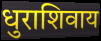
धुराशिवाय